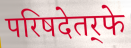
परिषदेतर्फे